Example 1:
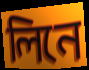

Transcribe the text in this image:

লিনে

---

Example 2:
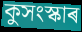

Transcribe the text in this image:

কুসংস্কাৰ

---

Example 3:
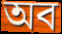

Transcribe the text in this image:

অব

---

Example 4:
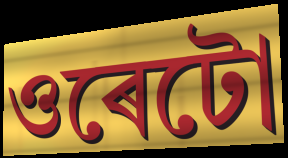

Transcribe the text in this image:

ওৰেটো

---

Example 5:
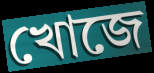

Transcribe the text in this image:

খোজে